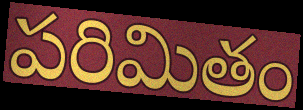
పరిమితం